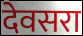
देवसरा